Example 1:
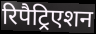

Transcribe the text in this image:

रिपैट्रिएशन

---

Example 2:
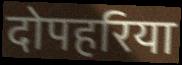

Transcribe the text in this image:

दोपहरिया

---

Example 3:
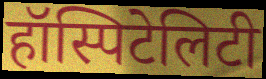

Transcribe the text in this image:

हॉस्पिटेलिटी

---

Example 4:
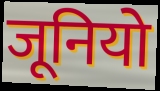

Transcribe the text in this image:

जूनियो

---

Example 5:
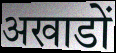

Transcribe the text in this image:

अखाडों